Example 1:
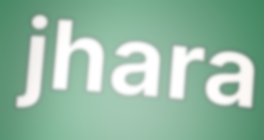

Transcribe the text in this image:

jhara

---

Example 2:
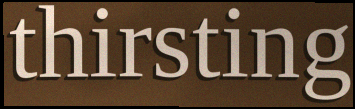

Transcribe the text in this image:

thirsting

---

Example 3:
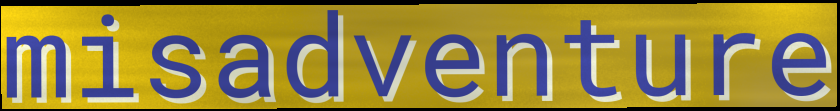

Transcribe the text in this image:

misadventure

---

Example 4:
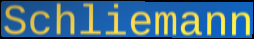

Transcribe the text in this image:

Schliemann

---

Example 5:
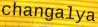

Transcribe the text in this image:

changalya